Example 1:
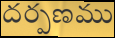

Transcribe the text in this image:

దర్పణము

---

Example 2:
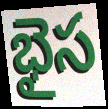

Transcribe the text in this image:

భైస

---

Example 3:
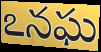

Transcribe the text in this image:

ఽనఘ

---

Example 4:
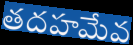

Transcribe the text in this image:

తదహమేవ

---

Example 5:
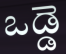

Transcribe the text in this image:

ఒడ్డె